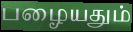
பழையதும்